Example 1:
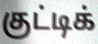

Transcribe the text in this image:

குட்டிக்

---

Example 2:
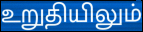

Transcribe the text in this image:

உறுதியிலும்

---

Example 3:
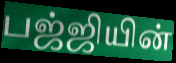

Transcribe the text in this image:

பஜ்ஜியின்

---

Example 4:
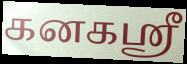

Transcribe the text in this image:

கனகஸ்ரீ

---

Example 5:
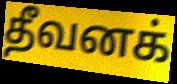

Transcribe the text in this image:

தீவனக்